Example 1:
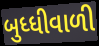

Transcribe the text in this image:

બુધ્ધીવાળી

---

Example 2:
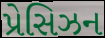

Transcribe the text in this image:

પ્રેસિઝન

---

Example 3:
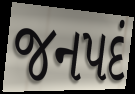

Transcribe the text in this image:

જનપદં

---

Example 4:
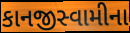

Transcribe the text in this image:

કાનજીસ્વામીના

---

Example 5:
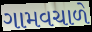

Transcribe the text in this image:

ગામવચાળે